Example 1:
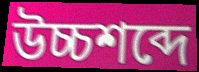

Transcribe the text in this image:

উচ্চশব্দে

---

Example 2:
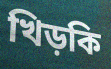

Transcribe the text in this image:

খিড়কি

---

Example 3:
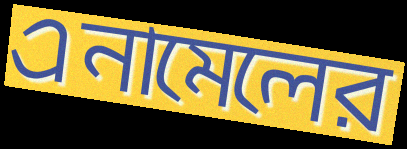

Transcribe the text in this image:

এনামেলের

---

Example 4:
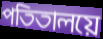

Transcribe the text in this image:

পতিতালয়ে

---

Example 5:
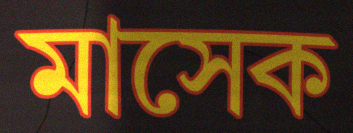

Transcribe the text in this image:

মাসেক